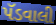
પૅડવાલી